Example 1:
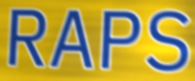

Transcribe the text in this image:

RAPS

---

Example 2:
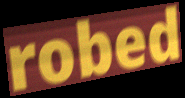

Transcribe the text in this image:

robed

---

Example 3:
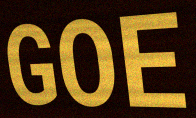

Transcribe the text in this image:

GOE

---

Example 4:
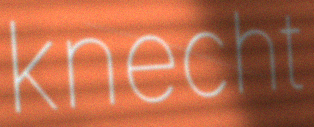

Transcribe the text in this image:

knecht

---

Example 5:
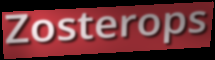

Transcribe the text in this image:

Zosterops